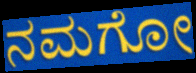
ನಮಗೋ